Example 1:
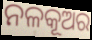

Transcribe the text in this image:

ନଳକୂଅର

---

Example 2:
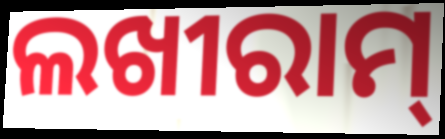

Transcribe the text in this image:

ଲଖୀରାମ୍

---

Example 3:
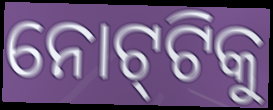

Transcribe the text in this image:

ନୋଟ୍‌ଟିକୁ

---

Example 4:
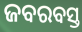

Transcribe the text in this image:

ଜବରବସ୍ତ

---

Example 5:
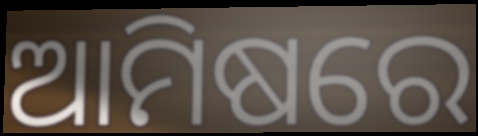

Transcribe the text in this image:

ଆମିଷରେ